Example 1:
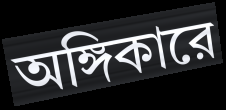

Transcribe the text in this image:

অঙ্গিকারে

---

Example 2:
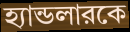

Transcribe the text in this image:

হ্যান্ডলারকে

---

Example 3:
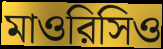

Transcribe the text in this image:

মাওরিসিও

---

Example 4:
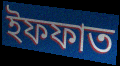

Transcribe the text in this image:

ইফফাত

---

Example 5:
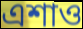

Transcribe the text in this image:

এশাও